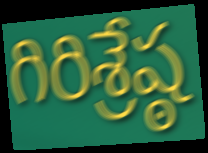
గిరిశ్రేష్ఠ